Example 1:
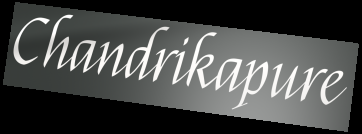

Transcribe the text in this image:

Chandrikapure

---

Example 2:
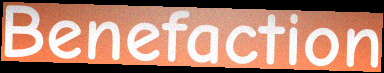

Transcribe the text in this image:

Benefaction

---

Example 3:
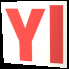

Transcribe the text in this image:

Yl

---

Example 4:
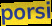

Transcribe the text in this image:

porsi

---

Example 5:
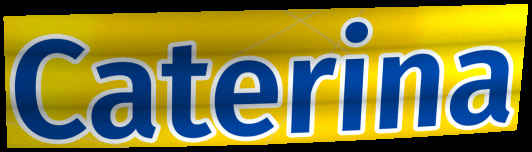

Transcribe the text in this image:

Caterina